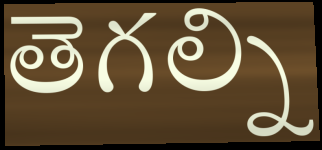
తెగల్ని